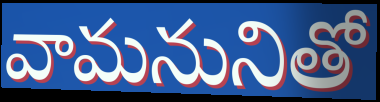
వామనునితో